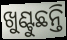
ଖୁଣ୍ଟୁଛନ୍ତି